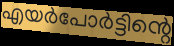
എയർപോർട്ടിന്റെ